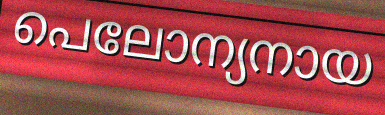
പെലോന്യനായ